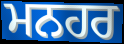
ਮਨਹਰ